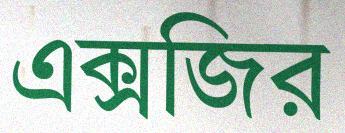
এক্সজির